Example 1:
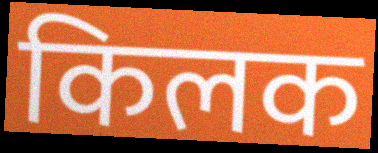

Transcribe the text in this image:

किलक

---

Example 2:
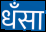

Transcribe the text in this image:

धँसा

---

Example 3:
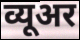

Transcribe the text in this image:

व्यूअर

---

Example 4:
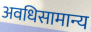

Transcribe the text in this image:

अवधिसामान्य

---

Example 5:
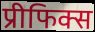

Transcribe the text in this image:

प्रीफिक्स